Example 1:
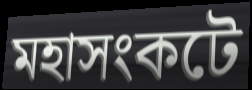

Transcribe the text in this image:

মহাসংকটে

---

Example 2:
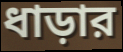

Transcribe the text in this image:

ধাড়ার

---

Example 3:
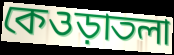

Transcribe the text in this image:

কেওড়াতলা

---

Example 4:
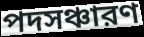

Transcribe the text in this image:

পদসঞ্চারণ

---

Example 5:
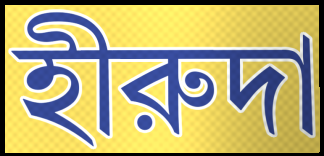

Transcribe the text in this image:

হীরুদা